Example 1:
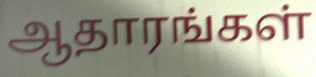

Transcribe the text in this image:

ஆதாரங்கள்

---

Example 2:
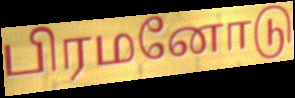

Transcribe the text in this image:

பிரமனோடு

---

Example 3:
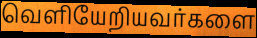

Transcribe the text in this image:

வெளியேறியவர்களை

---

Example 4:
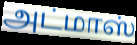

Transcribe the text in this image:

அட்மாஸ்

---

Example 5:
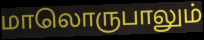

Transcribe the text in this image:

மாலொருபாலும்